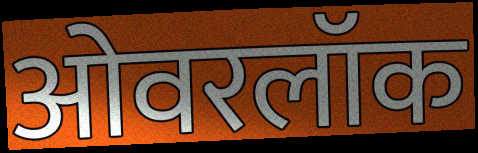
ओवरलॉक